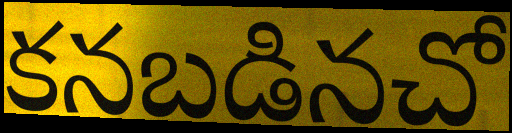
కనబడినచో